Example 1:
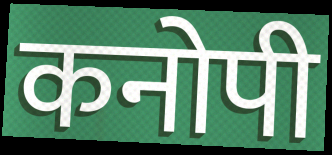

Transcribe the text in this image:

कनोपी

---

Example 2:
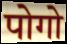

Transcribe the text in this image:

पोगो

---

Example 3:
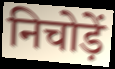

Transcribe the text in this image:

निचोड़ें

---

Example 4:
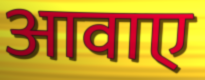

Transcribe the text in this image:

आवाए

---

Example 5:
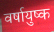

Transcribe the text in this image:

वर्षायुष्क